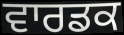
ਵਾਰਡਕ